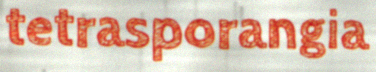
tetrasporangia